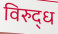
विरुद्ध